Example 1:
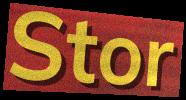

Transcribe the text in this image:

Stor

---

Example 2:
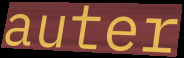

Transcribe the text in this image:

auter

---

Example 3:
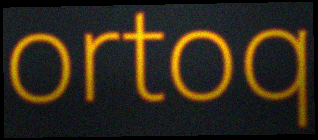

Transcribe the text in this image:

ortoq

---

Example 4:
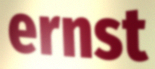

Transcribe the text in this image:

ernst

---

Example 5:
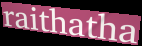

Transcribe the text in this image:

raithatha